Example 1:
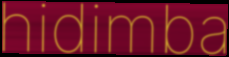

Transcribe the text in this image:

hidimba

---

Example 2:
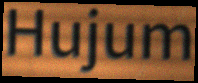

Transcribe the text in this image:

Hujum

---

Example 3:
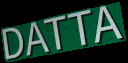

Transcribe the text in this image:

DATTA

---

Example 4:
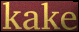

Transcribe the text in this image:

kake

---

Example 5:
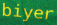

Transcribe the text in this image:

biyer